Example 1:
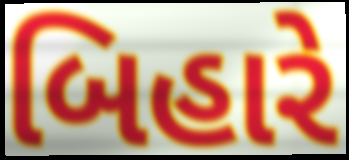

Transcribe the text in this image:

બિહારે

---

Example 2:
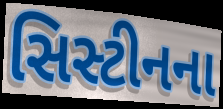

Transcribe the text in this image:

સિસ્ટીનના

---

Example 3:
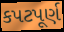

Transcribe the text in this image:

કપટપૂર્ણ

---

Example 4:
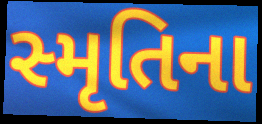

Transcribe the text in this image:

સ્મૃતિના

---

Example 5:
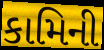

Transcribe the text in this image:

કામિની